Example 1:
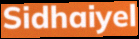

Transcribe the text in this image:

Sidhaiyel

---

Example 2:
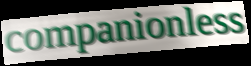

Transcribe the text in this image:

companionless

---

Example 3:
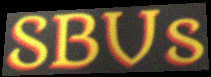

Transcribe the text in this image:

SBUs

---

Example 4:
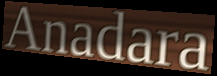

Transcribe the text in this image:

Anadara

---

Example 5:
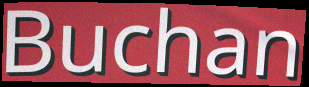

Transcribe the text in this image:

Buchan